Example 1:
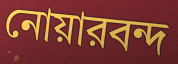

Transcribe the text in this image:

নোয়ারবন্দ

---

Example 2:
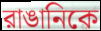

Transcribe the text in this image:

রাঙানিকে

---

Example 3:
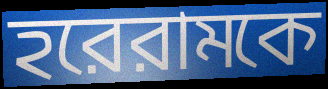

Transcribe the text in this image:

হরেরামকে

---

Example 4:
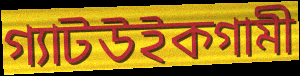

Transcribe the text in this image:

গ্যাটউইকগামী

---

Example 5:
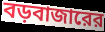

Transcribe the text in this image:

বড়বাজারের